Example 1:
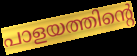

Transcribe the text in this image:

പാളയത്തിന്റെ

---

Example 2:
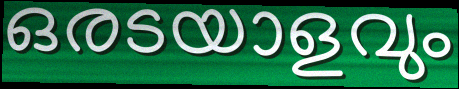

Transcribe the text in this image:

ഒരടയാളവും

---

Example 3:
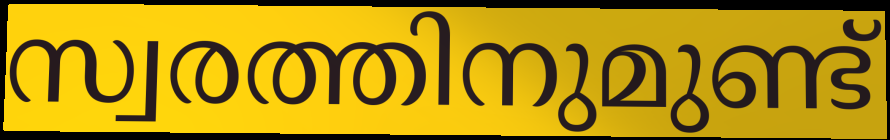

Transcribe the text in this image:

സ്വരത്തിനുമുണ്ട്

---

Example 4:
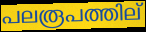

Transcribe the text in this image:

പലരൂപത്തില്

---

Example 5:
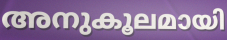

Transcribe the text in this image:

അനുകൂലമായി